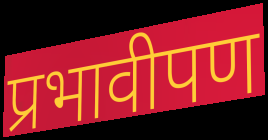
प्रभावीपण